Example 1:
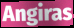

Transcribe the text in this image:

Angiras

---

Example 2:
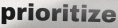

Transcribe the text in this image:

prioritize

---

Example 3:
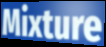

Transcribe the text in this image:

Mixture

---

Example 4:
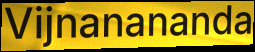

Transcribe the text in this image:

Vijnanananda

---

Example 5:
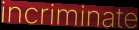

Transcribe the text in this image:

incriminate